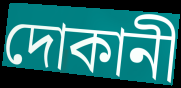
দোকানী